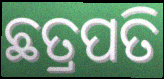
ଛତ୍ରପତି